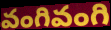
వంగివంగి